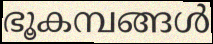
ഭൂകമ്പങ്ങൾ